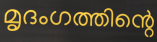
മൃദംഗത്തിന്റെ